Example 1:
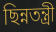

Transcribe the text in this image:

ছিন্নতন্ত্রী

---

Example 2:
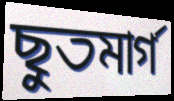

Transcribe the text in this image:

ছুতমার্গ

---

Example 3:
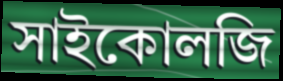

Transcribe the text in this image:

সাইকোলজি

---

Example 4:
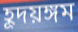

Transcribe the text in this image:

হূদয়ঙ্গম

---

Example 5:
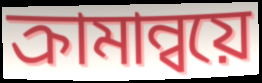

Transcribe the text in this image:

ক্রামান্বয়ে